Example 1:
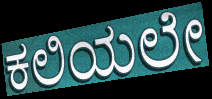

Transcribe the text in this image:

ಕಲಿಯಲೇ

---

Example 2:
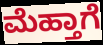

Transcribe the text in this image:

ಮೆಹ್ತಾಗೆ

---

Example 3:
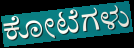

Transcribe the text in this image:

ಕೋಟೆಗಳು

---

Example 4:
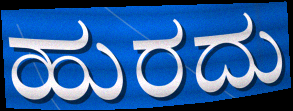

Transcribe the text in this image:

ಹುರದು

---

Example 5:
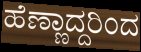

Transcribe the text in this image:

ಹೆಣ್ಣಾದ್ದರಿಂದ